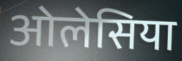
ओलेसिया